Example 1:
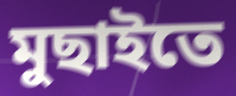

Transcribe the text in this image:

মুছাইতে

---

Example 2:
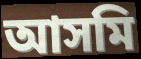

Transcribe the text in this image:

আসমি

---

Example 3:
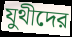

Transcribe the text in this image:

যুথীদের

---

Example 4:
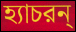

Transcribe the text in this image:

হ্যাচরন্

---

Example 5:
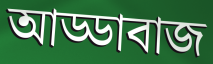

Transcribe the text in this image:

আড্ডাবাজ